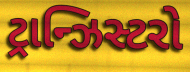
ટ્રાન્ઝિસ્ટરો